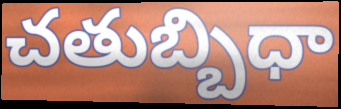
చతుబ్బిధా